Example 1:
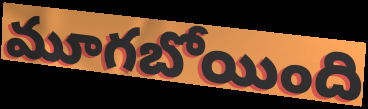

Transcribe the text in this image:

మూగబోయింది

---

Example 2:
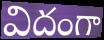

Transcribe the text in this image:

విదంగా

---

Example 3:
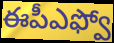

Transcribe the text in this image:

ఈపీఎఫ్వో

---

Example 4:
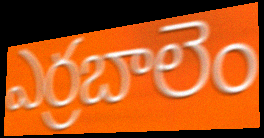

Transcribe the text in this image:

ఎర్రబాలెం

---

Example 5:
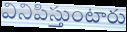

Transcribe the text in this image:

వినిపిస్తుంటారు